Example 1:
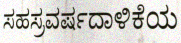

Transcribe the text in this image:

ಸಹಸ್ರವರ್ಷದಾಳಿಕೆಯ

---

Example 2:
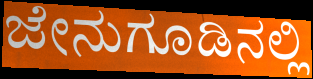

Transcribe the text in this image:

ಜೇನುಗೂಡಿನಲ್ಲಿ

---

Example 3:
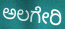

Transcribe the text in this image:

ಅಲಗೇರಿ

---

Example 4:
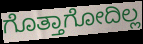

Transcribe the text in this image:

ಗೊತ್ತಾಗೋದಿಲ್ಲ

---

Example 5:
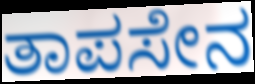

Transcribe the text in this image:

ತಾಪಸೇನ